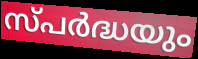
സ്പർദ്ധയും